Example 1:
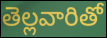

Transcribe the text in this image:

తెల్లవారితో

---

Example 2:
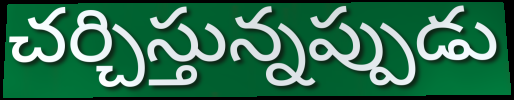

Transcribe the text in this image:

చర్చిస్తున్నప్పుడు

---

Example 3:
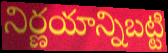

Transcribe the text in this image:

నిర్ణయాన్నిబట్టి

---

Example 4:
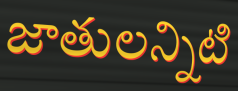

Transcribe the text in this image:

జాతులన్నిటి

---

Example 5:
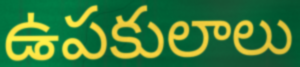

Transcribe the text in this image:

ఉపకులాలు